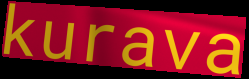
kurava